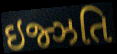
ઇજ્ઝતિ